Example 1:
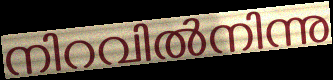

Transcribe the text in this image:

നിറവിൽനിന്നു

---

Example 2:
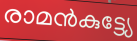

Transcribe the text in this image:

രാമൻകുട്ട്യേ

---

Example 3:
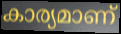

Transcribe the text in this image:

കാര്യമാണ്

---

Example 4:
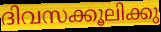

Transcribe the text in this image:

ദിവസക്കൂലിക്കു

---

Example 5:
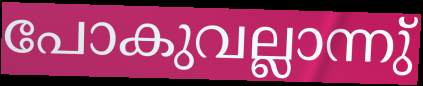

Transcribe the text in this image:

പോകുവല്ലാന്നു്